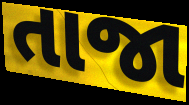
તાજા